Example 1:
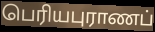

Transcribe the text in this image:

பெரியபுராணப்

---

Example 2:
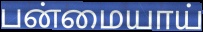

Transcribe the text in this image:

பன்மையாய்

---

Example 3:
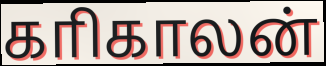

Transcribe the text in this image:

கரிகாலன்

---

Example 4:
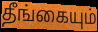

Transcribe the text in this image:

தீங்கையும்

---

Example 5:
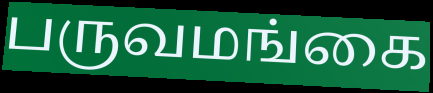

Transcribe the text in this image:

பருவமங்கை